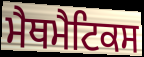
ਮੈਥਮੈਟਿਕਸ